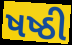
ષષ્ઠી